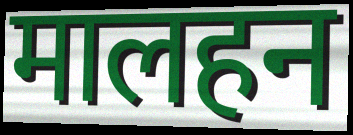
मालहन